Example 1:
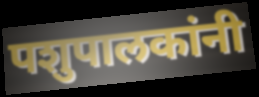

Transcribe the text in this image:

पशुपालकांनी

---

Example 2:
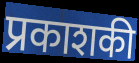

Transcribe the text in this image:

प्रकाशकी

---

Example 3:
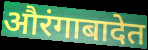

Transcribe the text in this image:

औरंगाबादेत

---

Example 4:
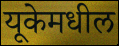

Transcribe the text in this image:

यूकेमधील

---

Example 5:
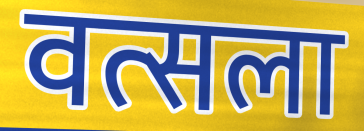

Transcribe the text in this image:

वत्सला